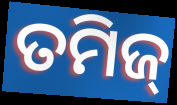
ତମିଜ୍